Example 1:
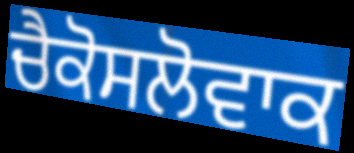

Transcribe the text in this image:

ਚੈਕੋਸਲੋਵਾਕ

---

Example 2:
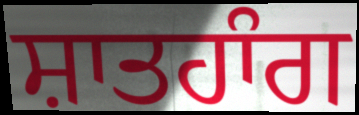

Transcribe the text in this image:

ਸ਼ਾਤਹਾੰਗ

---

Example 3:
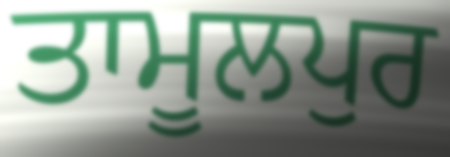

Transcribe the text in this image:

ਤਾਮੂਲਪੁਰ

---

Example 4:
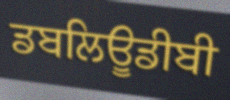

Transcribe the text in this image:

ਡਬਲਿਊਡੀਬੀ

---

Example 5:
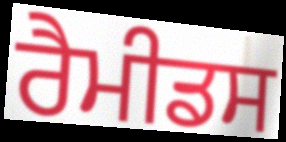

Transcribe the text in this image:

ਰੈਮੀਡਸ